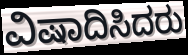
ವಿಷಾದಿಸಿದರು